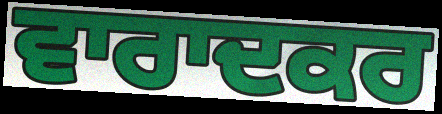
ਵਾਰਾਦਕਰ